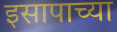
इसापाच्या